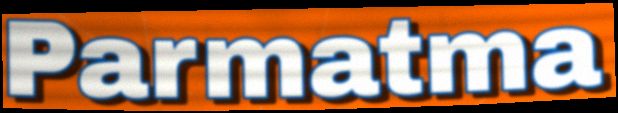
Parmatma